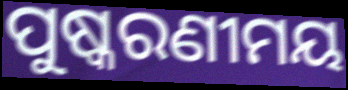
ପୁଷ୍କରଣୀମୟ